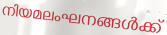
നിയമലംഘനങ്ങൾക്ക്